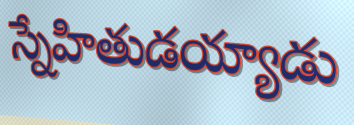
స్నేహితుడయ్యాడు